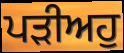
ਪੜੀਅਹੁ